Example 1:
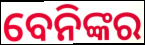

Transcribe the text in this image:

ବେନିଙ୍କର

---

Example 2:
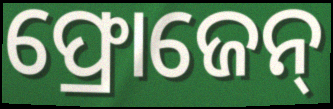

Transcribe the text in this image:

ଫ୍ରୋଜେନ୍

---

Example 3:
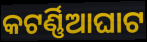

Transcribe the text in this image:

କଟର୍ଣ୍ଣିଆଘାଟ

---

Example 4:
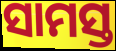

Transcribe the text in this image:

ସାମସ୍ତ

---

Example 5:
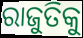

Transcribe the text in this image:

ରାଜୁତିକୁ